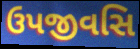
ઉપજીવસિ